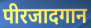
पीरजादगान